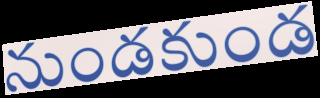
నుండకుండ